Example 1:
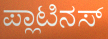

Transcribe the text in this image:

ಪ್ಲಾಟಿನಸ್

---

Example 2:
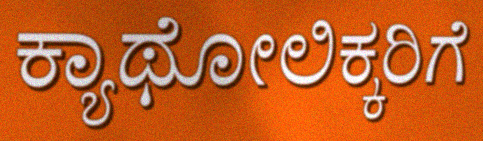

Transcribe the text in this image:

ಕ್ಯಾಥೋಲಿಕ್ಕರಿಗೆ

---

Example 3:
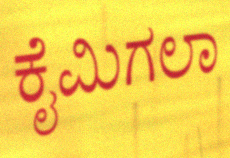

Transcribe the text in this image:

ಕೈಮಿಗಲಾ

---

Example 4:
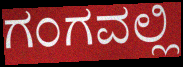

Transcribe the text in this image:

ಗಂಗವಲ್ಲಿ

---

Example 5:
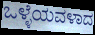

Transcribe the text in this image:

ಒಳ್ಳೆಯವಳಾದ